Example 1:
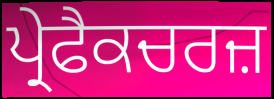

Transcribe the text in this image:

ਪ੍ਰੇਫੈਕਚਰਜ਼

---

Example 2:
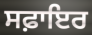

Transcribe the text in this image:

ਸਫ਼ਾਇਰ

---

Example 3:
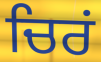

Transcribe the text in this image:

ਚਿਰਂ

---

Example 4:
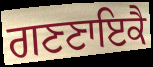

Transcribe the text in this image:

ਗਣਣਾਇਕੈ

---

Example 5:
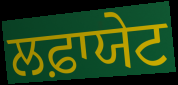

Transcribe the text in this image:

ਲਫ਼ਾਯੇਟ